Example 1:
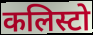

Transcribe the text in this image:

कलिस्टो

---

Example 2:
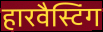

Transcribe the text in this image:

हारवैस्टिंग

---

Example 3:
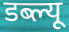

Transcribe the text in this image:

डब्ल्यू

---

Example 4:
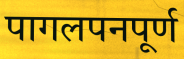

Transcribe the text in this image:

पागलपनपूर्ण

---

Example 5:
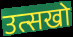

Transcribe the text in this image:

उत्सखो